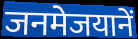
जनमेजयानें